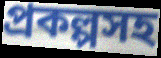
প্রকল্পসহ